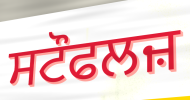
ਸਟੌਫਲਜ਼